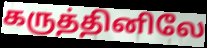
கருத்தினிலே